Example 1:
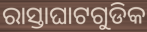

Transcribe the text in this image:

ରାସ୍ତାଘାଟଗୁଡିକ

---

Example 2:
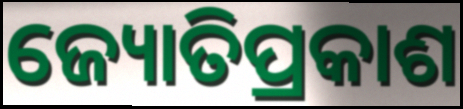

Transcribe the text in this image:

ଜ୍ୟୋତିପ୍ରକାଶ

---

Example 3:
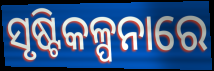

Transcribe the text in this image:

ସୃଷ୍ଟିକଳ୍ପନାରେ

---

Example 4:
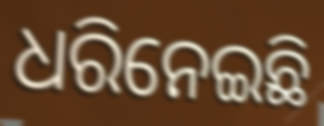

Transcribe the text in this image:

ଧରିନେଇଛି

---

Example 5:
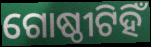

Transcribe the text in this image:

ଗୋଷ୍ଠୀଟିହିଁ